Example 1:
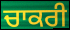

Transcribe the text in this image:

ਚਾਕਰੀ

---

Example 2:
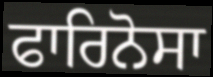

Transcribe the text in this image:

ਫਾਰਿਨੋਸਾ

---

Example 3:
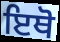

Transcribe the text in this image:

ਇਥੋ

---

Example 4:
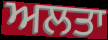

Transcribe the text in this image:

ਅਲਤਾ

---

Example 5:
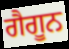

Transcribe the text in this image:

ਗੈਗੂਨ